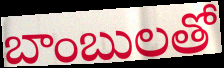
బాంబులతో